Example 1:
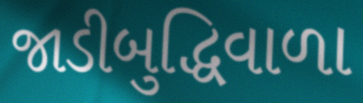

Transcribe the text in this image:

જાડીબુદ્ધિવાળા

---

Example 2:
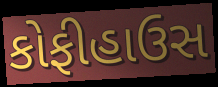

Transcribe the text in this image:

કોફીહાઉસ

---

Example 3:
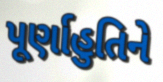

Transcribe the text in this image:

પૂર્ણાહુતિને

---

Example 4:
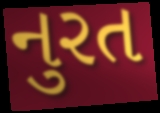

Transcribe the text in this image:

નુરત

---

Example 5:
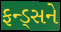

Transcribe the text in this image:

ફન્ડ્સને